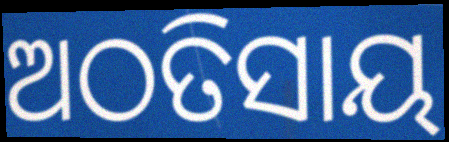
ଅଠତିସାୟ